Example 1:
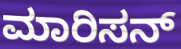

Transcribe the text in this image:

ಮಾರಿಸನ್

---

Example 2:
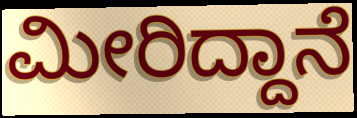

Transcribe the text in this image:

ಮೀರಿದ್ದಾನೆ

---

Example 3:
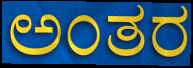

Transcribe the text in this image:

ಅಂತರ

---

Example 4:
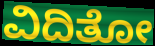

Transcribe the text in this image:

ವಿದಿತೋ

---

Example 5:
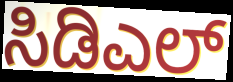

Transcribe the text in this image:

ಸಿಡಿಎಲ್